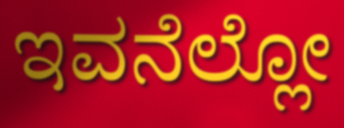
ಇವನೆಲ್ಲೋ